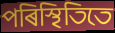
পৰিস্থিতিতে